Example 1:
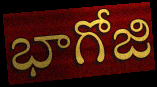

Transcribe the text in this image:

భాగోజి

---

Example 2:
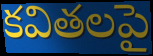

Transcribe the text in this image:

కవితలపై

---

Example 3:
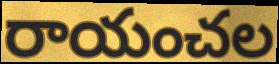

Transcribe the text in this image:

రాయంచల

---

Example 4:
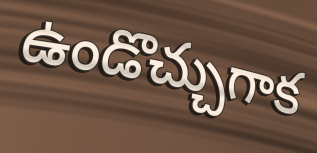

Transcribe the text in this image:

ఉండొచ్చుగాక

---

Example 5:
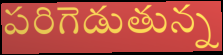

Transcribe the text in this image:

పరిగెడుతున్న